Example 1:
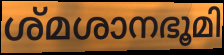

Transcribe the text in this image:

ശ്മശാനഭൂമി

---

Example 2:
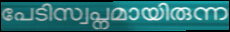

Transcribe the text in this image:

പേടിസ്വപ്നമായിരുന്ന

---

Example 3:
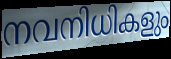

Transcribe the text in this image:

നവനിധികളും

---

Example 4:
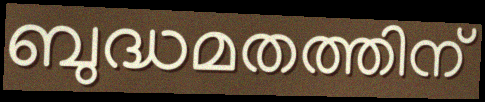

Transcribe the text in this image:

ബുദ്ധമതത്തിന്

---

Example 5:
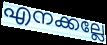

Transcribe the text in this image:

എനക്കല്ലേ